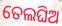
ତେଲଘିଅ